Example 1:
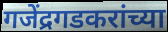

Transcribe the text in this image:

गजेंद्रगडकरांच्या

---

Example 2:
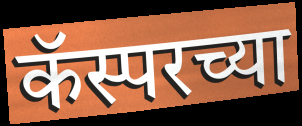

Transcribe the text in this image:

कॅस्परच्या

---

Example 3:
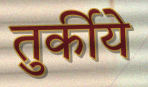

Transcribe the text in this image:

तुर्कीये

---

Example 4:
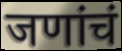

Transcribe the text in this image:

जणांचं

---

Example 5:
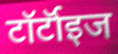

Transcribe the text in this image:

टॉर्टॉइज